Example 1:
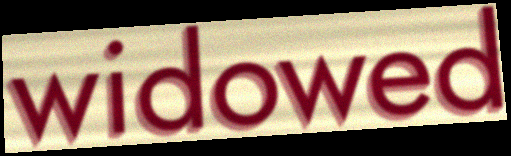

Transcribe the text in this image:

widowed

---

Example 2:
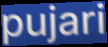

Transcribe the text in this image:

pujari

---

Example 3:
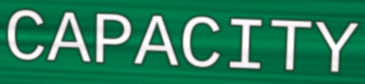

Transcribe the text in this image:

CAPACITY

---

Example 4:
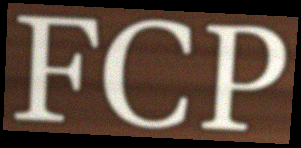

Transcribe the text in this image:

FCP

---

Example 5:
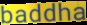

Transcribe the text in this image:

baddha